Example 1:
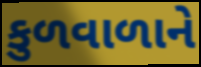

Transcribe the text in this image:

કુળવાળાને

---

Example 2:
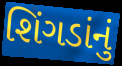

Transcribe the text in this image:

શિંગડાંનું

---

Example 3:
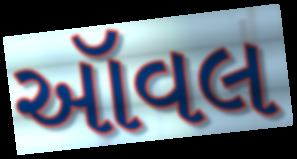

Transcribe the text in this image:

ઑવલ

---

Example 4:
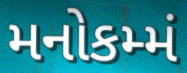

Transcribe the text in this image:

મનોકમ્મં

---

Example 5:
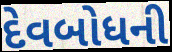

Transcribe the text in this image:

દેવબોધની